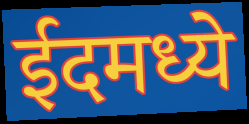
ईदमध्ये